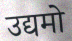
उद्यमो